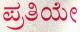
ಪ್ರತಿಯೇ